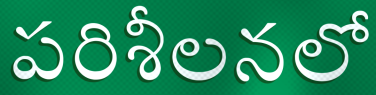
పరిశీలనలో